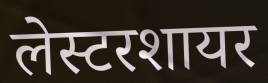
लेस्टरशायर